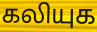
கலியுக